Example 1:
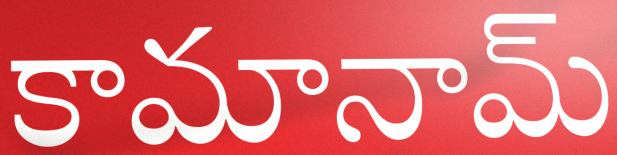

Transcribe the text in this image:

కామానామ్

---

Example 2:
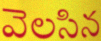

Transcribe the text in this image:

వెలసిన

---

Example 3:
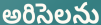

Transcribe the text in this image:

అరిసెలను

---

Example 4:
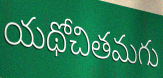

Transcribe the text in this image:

యథోచితమగు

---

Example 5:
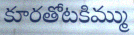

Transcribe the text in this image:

కూరతోటకిమ్ము